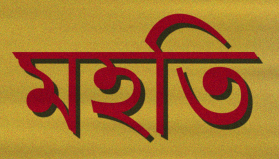
মহতি